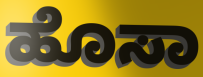
ಹೊಸಾ